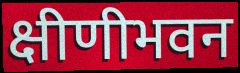
क्षीणीभवन